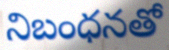
నిబంధనతో